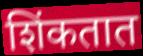
शिंकतात